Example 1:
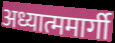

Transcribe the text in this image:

अध्यात्ममार्गी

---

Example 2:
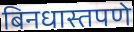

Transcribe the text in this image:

बिनधास्तपणे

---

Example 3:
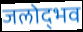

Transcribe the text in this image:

जलोद्भव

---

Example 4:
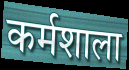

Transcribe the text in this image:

कर्मशाला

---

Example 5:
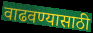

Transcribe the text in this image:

वाढवण्यासाठी